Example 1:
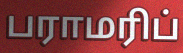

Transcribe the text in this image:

பராமரிப்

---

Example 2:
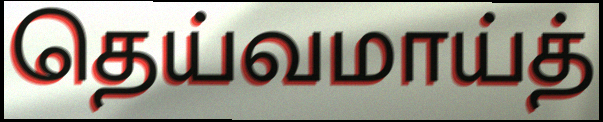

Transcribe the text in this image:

தெய்வமாய்த்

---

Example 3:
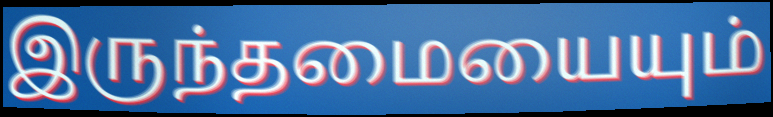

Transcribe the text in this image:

இருந்தமையையும்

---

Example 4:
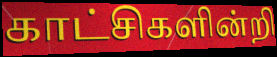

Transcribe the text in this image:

காட்சிகளின்றி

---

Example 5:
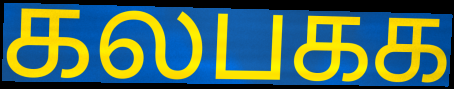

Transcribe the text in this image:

கலபகக